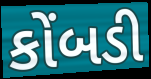
કોંબડી